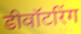
डीवॉटरिंग